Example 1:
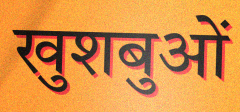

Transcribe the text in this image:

खुशबुओं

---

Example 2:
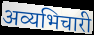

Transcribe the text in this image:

अव्यभिचारी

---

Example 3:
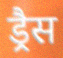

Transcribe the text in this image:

ड्रैस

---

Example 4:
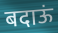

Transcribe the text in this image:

बदाऊं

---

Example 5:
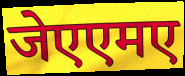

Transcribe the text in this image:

जेएएमए